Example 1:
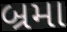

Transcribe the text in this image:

બ્રમા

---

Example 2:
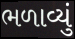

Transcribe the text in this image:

ભળાવ્યું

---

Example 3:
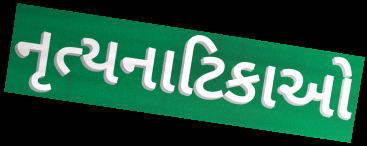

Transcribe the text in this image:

નૃત્યનાટિકાઓ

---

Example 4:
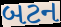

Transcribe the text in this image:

બટન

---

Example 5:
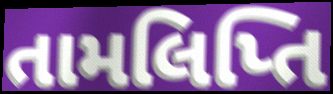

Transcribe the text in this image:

તામલિપ્તિ